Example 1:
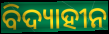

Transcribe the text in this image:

ବିଦ୍ୟାହୀନ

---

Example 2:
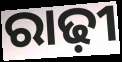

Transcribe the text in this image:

ରାଢ଼ୀ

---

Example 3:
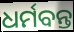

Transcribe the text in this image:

ଧର୍ମବନ୍ତ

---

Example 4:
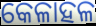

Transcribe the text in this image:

କେଳାହଳ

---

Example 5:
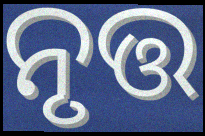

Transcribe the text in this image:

ନୃତ୍ତ